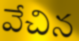
వేచిన